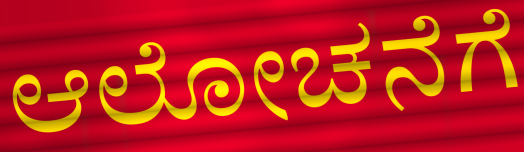
ಆಲೋಚನೆಗೆ